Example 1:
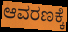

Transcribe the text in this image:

ಆವರಣಕ್ಕೆ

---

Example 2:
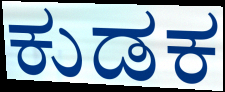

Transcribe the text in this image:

ಕುಡಕ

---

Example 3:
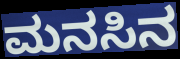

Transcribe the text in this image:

ಮನಸಿನ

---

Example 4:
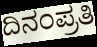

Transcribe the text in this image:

ದಿನಂಪ್ರತಿ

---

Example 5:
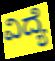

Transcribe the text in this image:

ವಿದ್ಯೆ